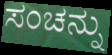
ಸಂಚನ್ನು